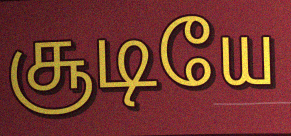
சூடியே